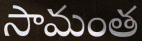
సామంత